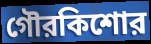
গৌরকিশোর